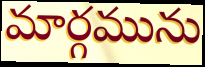
మార్గమును